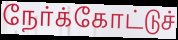
நேர்க்கோட்டுச்